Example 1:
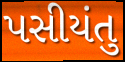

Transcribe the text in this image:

પસીયંતુ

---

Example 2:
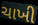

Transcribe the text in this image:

ચાખી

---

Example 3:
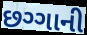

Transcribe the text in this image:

છગ્ગાની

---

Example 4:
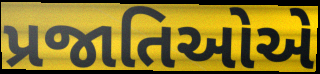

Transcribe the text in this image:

પ્રજાતિઓએ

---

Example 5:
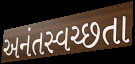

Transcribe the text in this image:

અનંતસ્વચ્છતા